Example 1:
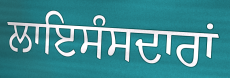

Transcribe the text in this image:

ਲਾਇਸੰਸਦਾਰਾਂ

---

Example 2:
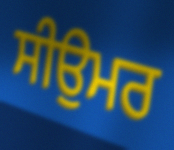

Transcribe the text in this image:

ਸੀਉਮਰ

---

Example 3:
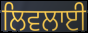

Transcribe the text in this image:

ਲਿਵਲਾਈ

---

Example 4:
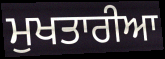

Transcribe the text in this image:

ਮੁਖਤਾਰੀਆ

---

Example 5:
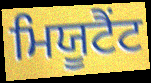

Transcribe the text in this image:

ਮਿਯੂਟੈਂਟ